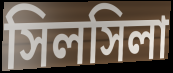
সিলসিলা